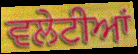
ਵਲੇਟੀਆਂ